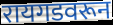
रायगडवरून